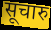
सूचारु